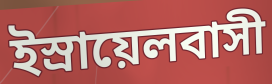
ইস্রায়েলবাসী